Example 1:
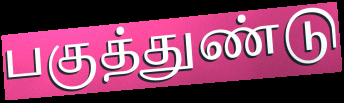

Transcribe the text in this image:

பகுத்துண்டு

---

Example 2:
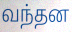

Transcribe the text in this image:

வந்தன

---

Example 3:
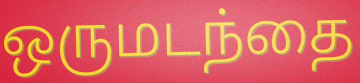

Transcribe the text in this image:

ஒருமடந்தை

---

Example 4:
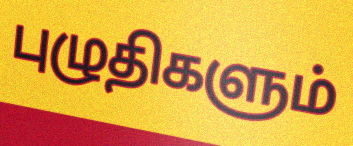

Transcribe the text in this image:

புழுதிகளும்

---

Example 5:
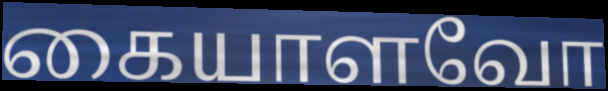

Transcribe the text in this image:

கையாளவோ